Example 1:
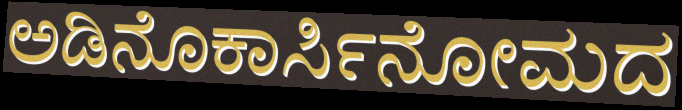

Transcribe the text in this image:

ಅಡಿನೊಕಾರ್ಸಿನೋಮದ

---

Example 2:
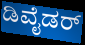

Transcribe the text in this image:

ಡಿವೈಡರ್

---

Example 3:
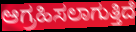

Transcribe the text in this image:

ಆಗ್ರಹಿಸಲಾಗುತ್ತಿದೆ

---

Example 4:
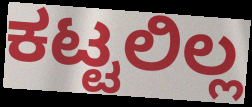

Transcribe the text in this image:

ಕಟ್ಟಲಿಲ್ಲ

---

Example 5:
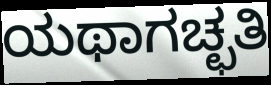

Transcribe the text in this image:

ಯಥಾಗಚ್ಛತಿ